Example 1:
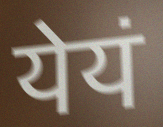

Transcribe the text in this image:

येयं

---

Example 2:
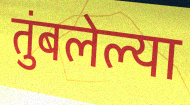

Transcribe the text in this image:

तुंबलेल्या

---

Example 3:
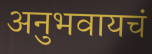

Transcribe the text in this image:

अनुभवायचं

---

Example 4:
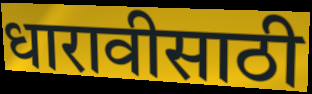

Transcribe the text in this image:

धारावीसाठी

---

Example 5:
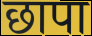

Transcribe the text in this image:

छापा